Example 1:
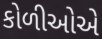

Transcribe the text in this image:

કોળીઓએ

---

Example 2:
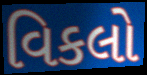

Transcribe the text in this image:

વિકલો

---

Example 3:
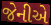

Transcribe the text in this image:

જેનીએ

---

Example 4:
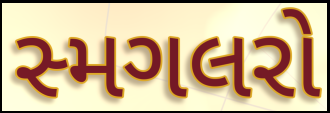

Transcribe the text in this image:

સ્મગલરો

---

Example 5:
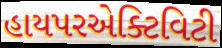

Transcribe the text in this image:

હાયપરએક્ટિવિટી